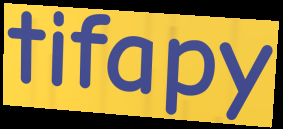
tifapy